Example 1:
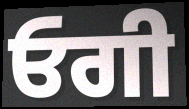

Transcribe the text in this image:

ਓਗੀ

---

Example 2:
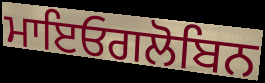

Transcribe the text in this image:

ਮਾਇਓਗਲੋਬਿਨ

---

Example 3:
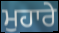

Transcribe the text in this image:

ਮੁਹਾਰੇ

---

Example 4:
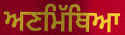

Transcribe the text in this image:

ਅਣਮਿੱਥਿਆ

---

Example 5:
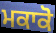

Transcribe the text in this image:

ਮਕਾਕੋ